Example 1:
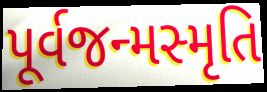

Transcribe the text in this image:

પૂર્વજન્મસ્મૃતિ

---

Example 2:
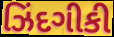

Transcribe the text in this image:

ઝિંદગીકી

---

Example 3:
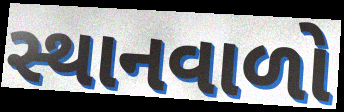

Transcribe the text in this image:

સ્થાનવાળો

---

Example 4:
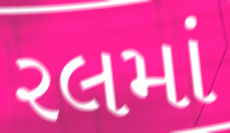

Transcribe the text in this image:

રલમાં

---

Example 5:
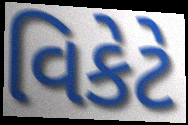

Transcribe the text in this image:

વિકેટે